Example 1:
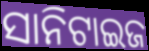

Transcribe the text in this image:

ସାନିଟାଇଜ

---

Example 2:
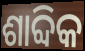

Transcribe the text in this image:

ଶାବ୍ଦିକ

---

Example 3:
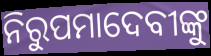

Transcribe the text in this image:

ନିରୁପମାଦେବୀଙ୍କୁ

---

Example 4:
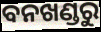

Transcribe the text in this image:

ବନଖଣ୍ଡରୁ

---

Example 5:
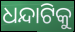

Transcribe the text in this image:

ଧନ୍ଦାଟିକୁ